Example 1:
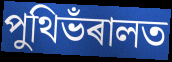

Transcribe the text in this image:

পুথিভঁৰালত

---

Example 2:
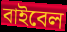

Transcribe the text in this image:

বাইবেল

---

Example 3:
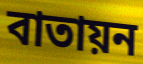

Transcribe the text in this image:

বাতায়ন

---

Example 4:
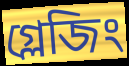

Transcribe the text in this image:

গ্লেজিং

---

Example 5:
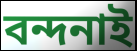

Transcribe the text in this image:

বন্দনাই